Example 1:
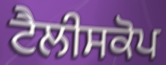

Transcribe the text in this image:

ਟੈਲੀਸਕੋਪ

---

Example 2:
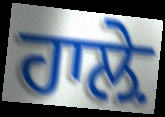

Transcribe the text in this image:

ਹਾਲ਼ੇ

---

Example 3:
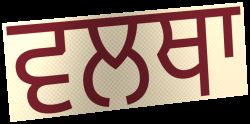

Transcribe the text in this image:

ਵਲਥਾ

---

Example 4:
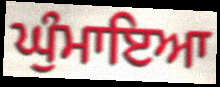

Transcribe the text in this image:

ਘੁੰਮਾਇਆ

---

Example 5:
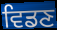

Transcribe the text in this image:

ਵਿਡਣ